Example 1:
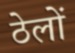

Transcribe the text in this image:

ठेलों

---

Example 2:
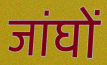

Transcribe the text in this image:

जांघों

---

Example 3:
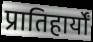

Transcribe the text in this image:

प्रातिहार्यों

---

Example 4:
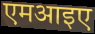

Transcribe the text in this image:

एमआइए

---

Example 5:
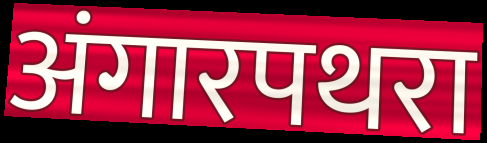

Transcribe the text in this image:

अंगारपथरा